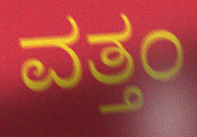
ವತ್ತಂ